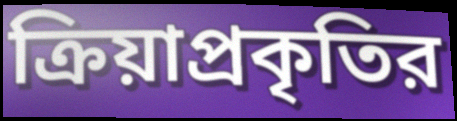
ক্রিয়াপ্রকৃতির